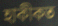
হাকীকত